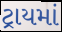
ટ્રાયમાં